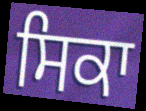
ਸਿਕਾ